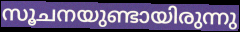
സൂചനയുണ്ടായിരുന്നു